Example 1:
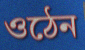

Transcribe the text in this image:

ওঠেন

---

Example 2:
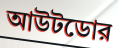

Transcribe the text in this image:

আউটডোর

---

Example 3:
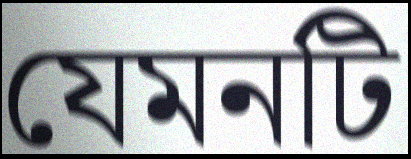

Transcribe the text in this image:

যেমনটি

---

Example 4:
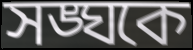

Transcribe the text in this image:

সঙ্ঘকে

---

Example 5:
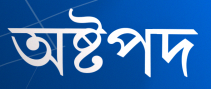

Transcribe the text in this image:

অষ্টপদ